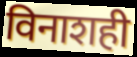
विनाशही